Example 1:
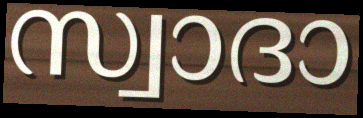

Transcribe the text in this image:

സ്വാദാ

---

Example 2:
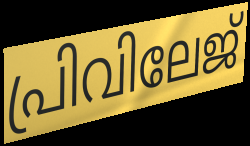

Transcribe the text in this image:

പ്രിവിലേജ്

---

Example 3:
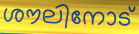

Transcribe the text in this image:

ശൗലിനോട്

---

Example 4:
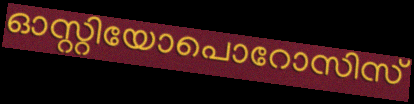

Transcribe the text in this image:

ഓസ്റ്റിയോപൊറോസിസ്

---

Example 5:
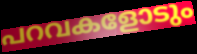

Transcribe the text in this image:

പറവകളോടും